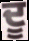
ਦੂ